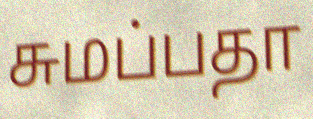
சுமப்பதா